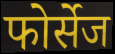
फोर्सेज